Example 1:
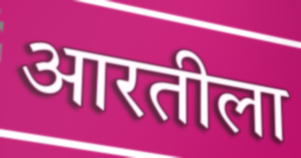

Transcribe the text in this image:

आरतीला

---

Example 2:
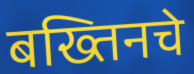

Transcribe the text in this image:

बख्तिनचे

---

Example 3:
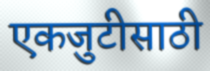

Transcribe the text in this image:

एकजुटीसाठी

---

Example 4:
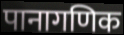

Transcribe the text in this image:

पानागणिक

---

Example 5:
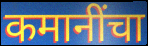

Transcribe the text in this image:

कमानींचा